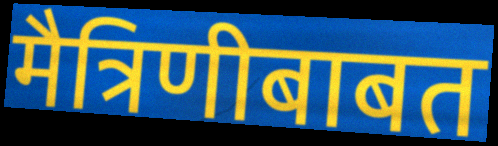
मैत्रिणीबाबत